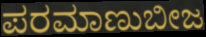
ಪರಮಾಣುಬೀಜ